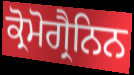
ਕ੍ਰੋਮੋਗ੍ਰੈਨਿਨ